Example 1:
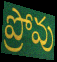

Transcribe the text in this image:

ప్రోవు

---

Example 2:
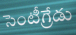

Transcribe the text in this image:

సెంటీగ్రేడు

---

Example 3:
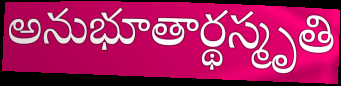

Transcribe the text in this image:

అనుభూతార్థస్మృతి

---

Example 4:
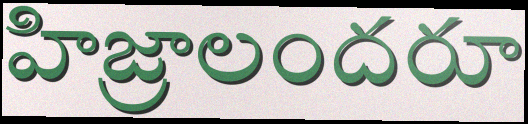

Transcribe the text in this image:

హిజ్రాలందరూ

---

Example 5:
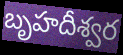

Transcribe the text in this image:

బృహదీశ్వర